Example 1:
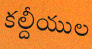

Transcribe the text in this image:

కల్దీయుల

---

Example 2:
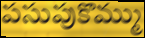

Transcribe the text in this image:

పసుపుకొమ్ము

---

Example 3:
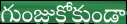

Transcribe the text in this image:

గుంజుకోకుండా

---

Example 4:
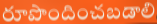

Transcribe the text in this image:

రూపొందించబడాలి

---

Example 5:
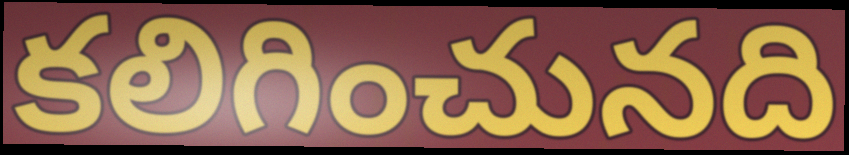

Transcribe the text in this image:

కలిగించునది